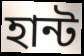
হান্ট